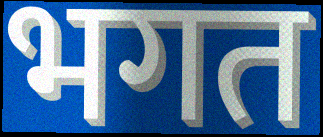
भगत